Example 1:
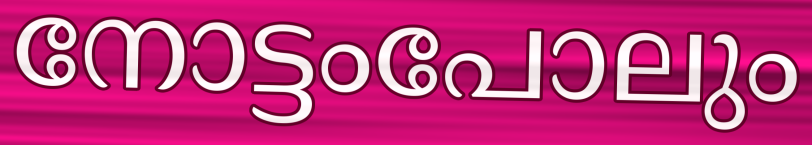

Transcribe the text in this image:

നോട്ടംപോലും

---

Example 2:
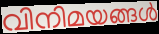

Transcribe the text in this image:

വിനിമയങ്ങൾ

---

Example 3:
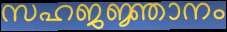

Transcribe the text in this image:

സഹജജ്ഞാനം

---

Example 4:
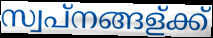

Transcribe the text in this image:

സ്വപ്നങ്ങള്ക്ക്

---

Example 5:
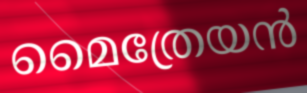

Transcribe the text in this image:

മൈത്രേയൻ